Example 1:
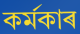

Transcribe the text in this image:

কৰ্মকাৰ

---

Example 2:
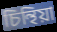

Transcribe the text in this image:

চিন্থিয়া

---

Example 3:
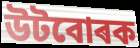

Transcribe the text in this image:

উটবোৰক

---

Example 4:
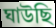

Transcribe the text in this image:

ঘাউছি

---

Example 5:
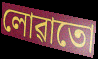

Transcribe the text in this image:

লোৱাতো